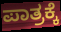
ಪಾತ್ರಕ್ಕೆ